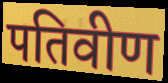
पतिवीण